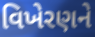
વિખેરણને